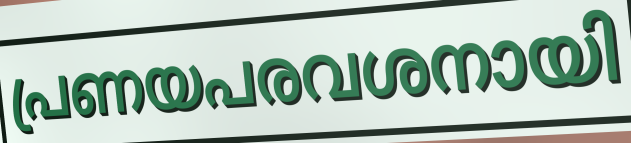
പ്രണയപരവശനായി